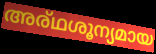
അര്ഥശൂന്യമായ